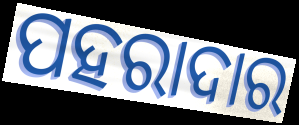
ପହରାଦାର